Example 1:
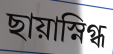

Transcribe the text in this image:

ছায়াস্নিগ্ধ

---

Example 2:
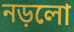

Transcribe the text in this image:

নড়লো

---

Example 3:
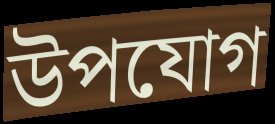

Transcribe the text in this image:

উপযোগ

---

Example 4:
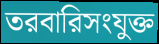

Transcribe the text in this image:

তরবারিসংযুক্ত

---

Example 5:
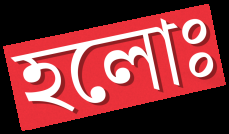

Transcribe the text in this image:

হলোঃ